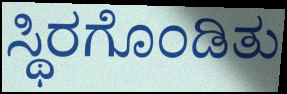
ಸ್ಥಿರಗೊಂಡಿತು